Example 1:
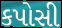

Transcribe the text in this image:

કપોસી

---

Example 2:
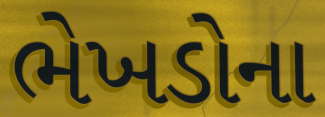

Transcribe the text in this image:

ભેખડોના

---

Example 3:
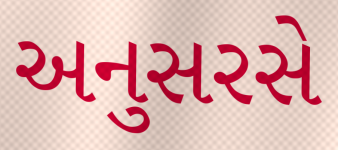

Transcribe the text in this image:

અનુસરસે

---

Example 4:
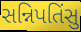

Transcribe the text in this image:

સન્નિપતિંસુ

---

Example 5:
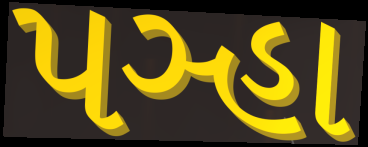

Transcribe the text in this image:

પઞ્હા